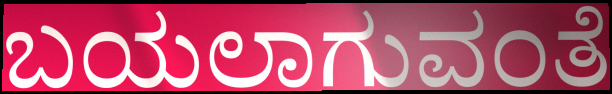
ಬಯಲಾಗುವಂತೆ